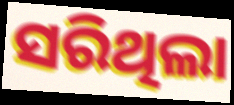
ସରିଥିଲା